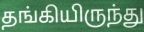
தங்கியிருந்து